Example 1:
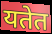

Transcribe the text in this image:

यतेत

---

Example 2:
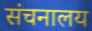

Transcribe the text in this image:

संचनालय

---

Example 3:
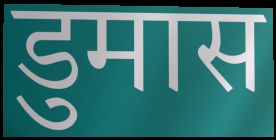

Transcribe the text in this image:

डुमास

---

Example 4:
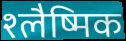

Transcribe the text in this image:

श्लैष्मिक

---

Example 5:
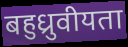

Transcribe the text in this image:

बहुध्रुवीयता